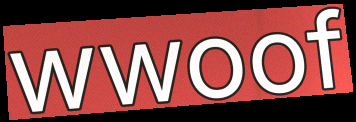
wwoof